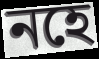
নহে